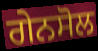
ਗੇਨਸੋਲ